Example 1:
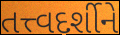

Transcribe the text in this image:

તત્ત્વદર્શીને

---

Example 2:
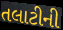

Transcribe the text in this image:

તલાટીની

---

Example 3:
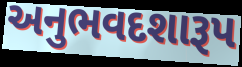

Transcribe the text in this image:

અનુભવદશારૂપ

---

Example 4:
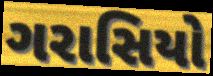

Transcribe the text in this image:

ગરાસિયો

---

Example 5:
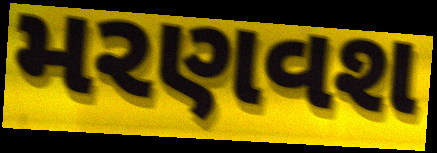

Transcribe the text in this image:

મરણવશ